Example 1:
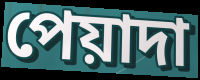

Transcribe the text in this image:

পেয়াদা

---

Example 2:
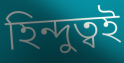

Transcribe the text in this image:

হিন্দুত্বই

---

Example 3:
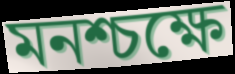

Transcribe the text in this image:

মনশ্চক্ষে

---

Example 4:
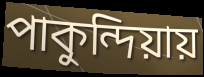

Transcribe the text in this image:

পাকুন্দিয়ায়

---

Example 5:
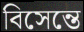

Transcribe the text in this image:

বিসেন্তে